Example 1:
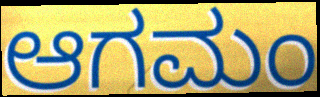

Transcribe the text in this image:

ಆಗಮಂ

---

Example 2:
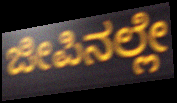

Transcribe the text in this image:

ಜೀಪಿನಲ್ಲೇ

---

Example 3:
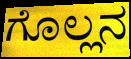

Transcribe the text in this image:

ಗೊಲ್ಲನ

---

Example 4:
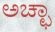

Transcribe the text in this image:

ಅಚ್ಛಾ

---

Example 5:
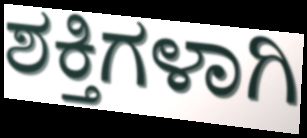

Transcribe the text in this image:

ಶಕ್ತಿಗಳಾಗಿ